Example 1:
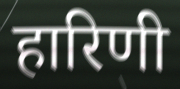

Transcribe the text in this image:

हारिणी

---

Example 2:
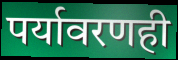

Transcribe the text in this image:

पर्यावरणही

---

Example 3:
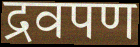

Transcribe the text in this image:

द्रवपण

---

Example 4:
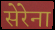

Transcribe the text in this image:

सेरेना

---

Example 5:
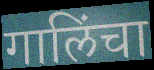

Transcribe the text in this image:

गालिंचा